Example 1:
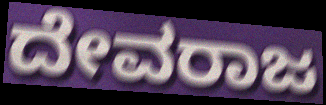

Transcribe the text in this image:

ದೇವರಾಜ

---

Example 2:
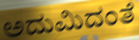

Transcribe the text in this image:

ಅದುಮಿದಂತೆ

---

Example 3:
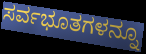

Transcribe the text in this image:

ಸರ್ವಭೂತಗಳನ್ನೂ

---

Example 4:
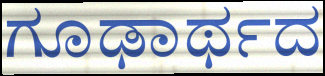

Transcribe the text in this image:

ಗೂಢಾರ್ಥದ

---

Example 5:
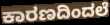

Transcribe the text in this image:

ಕಾರಣದಿಂದಲೆ